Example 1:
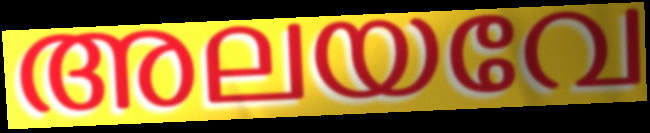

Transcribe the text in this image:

അലയവേ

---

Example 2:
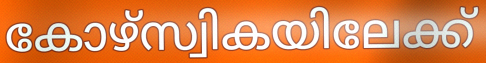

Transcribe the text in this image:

കോഴ്സ്വികയിലേക്ക്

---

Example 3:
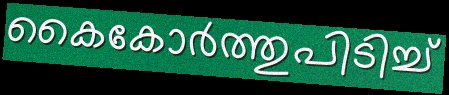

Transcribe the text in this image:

കൈകോർത്തുപിടിച്ച്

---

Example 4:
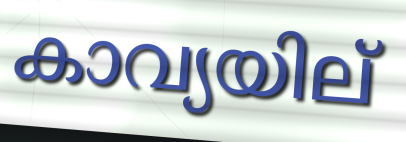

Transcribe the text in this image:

കാവ്യയില്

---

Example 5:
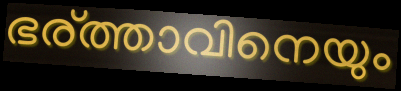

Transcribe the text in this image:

ഭര്ത്താവിനെയും